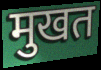
मुखत